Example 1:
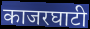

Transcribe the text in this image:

काजरघाटी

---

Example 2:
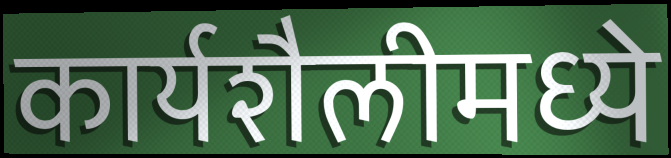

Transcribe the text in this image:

कार्यशैलीमध्ये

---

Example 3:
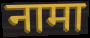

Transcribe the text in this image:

नामा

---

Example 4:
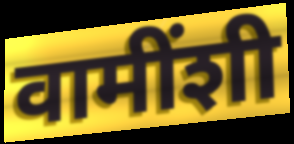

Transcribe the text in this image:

वामींशी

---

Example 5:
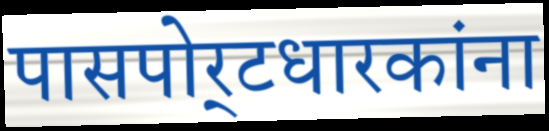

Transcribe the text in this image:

पासपोर्टधारकांना